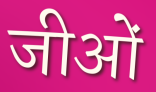
जीओं